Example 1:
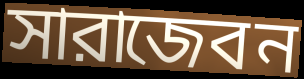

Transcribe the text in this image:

সারাজেবন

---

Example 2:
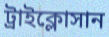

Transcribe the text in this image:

ট্রাইক্লোসান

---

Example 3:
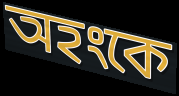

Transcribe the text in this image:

অহংকে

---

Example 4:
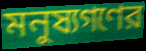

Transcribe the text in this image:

মনুষ্যগণের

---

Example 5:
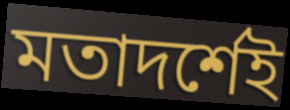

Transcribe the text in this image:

মতাদর্শেই